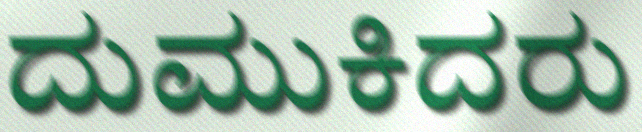
ದುಮುಕಿದರು